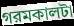
গরমকালটা